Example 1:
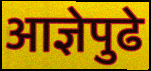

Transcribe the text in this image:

आज्ञेपुढे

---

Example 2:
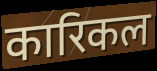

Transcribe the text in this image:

कारिकल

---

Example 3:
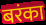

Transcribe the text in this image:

बरंका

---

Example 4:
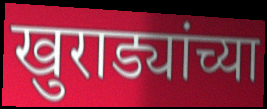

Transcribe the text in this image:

खुराड्यांच्या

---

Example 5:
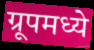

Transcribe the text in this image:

ग्रूपमध्ये